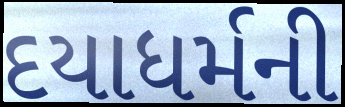
દયાધર્મની